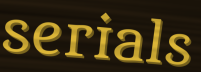
serials